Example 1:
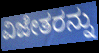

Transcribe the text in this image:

ವಿಜೇತರನ್ನು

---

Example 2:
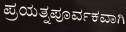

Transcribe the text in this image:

ಪ್ರಯತ್ನಪೂರ್ವಕವಾಗಿ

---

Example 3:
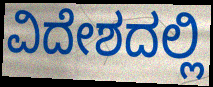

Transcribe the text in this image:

ವಿದೇಶದಲ್ಲಿ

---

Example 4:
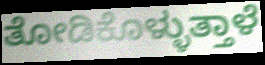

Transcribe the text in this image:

ತೋಡಿಕೊಳ್ಳುತ್ತಾಳೆ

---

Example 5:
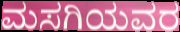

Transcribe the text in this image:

ಮಸಗಿಯವರ